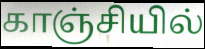
காஞ்சியில்